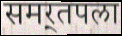
समर्तपला